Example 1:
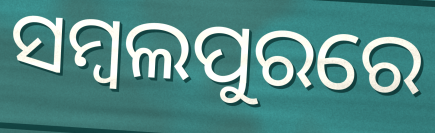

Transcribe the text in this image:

ସମ୍ବଲପୁରରେ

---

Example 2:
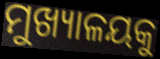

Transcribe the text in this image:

ମୁଖ୍ୟାଳୟକୁ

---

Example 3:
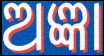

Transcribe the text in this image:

ଅଜ୍ଞା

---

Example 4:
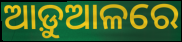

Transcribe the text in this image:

ଆଡ଼ୁଆଳରେ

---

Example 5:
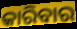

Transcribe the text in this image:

କାରିବାର